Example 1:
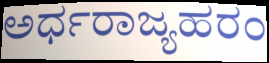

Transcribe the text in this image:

ಅರ್ಧರಾಜ್ಯಹರಂ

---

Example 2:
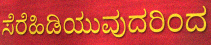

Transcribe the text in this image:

ಸೆರೆಹಿಡಿಯುವುದರಿಂದ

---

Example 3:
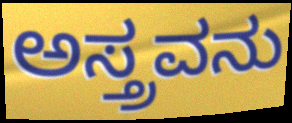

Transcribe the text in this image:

ಅಸ್ತ್ರವನು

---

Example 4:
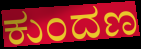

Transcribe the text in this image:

ಕುಂದಣ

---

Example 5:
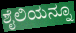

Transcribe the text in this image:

ಶೈಲಿಯನ್ನೂ